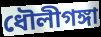
ধৌলীগঙ্গা